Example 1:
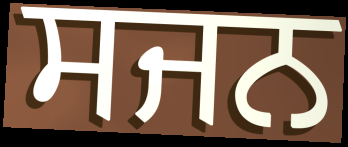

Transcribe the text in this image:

ਸਜਨ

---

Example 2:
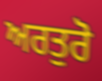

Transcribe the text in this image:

ਅਰਤੁਰੋ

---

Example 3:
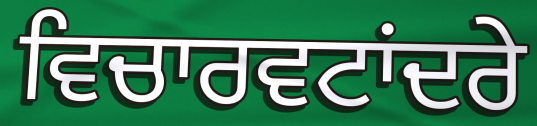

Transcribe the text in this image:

ਵਿਚਾਰਵਟਾਂਦਰੇ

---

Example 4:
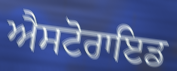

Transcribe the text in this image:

ਐਸਟੋਰਾਇਡ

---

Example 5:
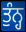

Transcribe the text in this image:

ਤੁੰਨ੍ਹ